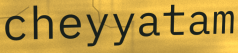
cheyyatam